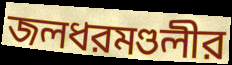
জলধরমণ্ডলীর